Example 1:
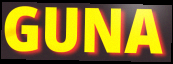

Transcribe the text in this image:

GUNA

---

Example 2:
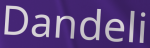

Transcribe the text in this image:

Dandeli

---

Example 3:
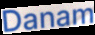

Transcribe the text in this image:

Danam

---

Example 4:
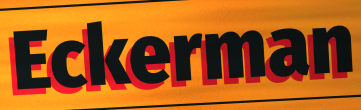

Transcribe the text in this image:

Eckerman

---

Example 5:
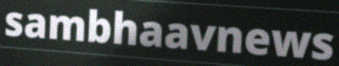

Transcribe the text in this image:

sambhaavnews